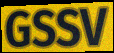
GSSV